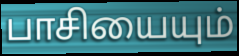
பாசியையும்